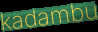
kadambu